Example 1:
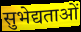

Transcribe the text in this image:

सुभेद्यताओं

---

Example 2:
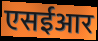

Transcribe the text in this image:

एसईआर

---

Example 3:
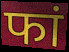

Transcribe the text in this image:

फां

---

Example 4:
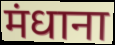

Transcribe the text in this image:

मंधाना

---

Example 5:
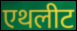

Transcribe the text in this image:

एथलीट